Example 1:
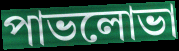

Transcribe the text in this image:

পাভলোভা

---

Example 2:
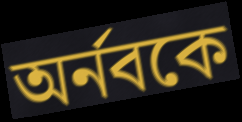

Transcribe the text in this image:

অর্নবকে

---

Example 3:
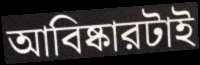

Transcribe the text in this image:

আবিষ্কারটাই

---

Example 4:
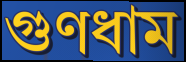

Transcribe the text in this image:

গুণধাম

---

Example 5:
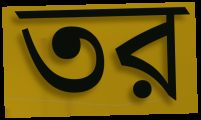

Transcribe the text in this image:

তর